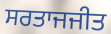
ਸਰਤਾਜਜੀਤ